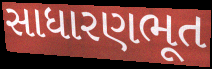
સાધારણભૂત